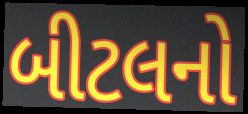
બીટલનો